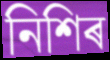
নিশিৰ